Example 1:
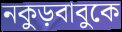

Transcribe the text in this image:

নকুড়বাবুকে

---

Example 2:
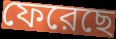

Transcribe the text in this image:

ফেরেছে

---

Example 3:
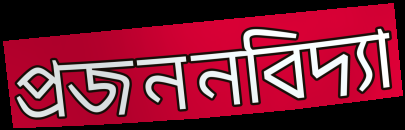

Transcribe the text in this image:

প্রজননবিদ্যা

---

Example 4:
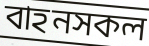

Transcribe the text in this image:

বাহনসকল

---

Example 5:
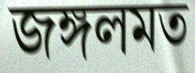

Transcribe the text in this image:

জঙ্গলমত